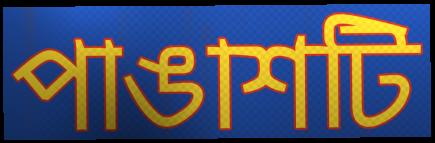
পাঙাশটি